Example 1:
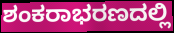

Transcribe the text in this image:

ಶಂಕರಾಭರಣದಲ್ಲಿ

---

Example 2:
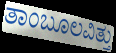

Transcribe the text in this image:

ತಾಂಬೂಲವಿತ್ತು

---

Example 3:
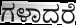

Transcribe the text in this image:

ಗಳಾದರೆ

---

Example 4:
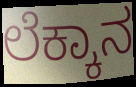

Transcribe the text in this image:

ಲೆಕ್ಕಾನ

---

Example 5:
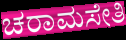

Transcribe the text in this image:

ಚರಾಮಸೇತಿ